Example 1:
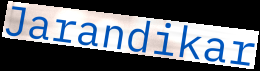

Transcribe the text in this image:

Jarandikar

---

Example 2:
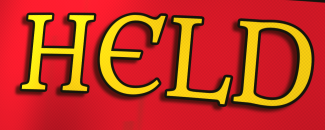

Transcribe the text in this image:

HELD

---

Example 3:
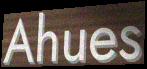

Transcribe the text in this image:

Ahues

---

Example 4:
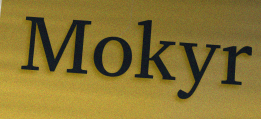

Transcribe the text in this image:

Mokyr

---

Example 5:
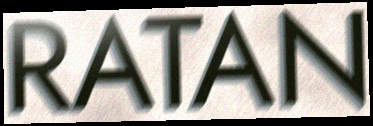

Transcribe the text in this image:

RATAN